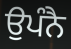
ਉਪੰਨੈ